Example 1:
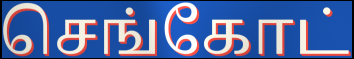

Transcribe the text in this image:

செங்கோட்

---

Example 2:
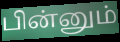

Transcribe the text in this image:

பின்னும்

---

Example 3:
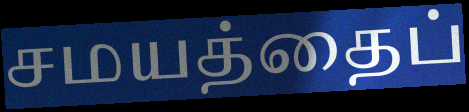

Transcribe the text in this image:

சமயத்தைப்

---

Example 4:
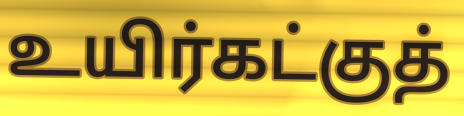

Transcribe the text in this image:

உயிர்கட்குத்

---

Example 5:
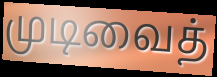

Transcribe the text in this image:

முடிவைத்